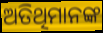
ଅତିଥିମାନଙ୍କ